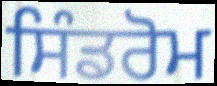
ਸਿੰਡਰੋਮ